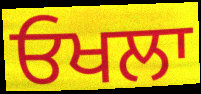
ਓਖਲਾ